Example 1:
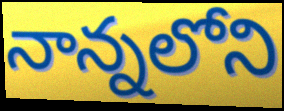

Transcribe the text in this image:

నాన్నలోని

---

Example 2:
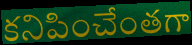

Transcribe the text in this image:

కనిపించేంతగా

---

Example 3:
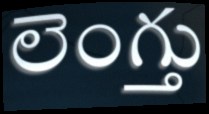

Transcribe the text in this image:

లెంగ్తు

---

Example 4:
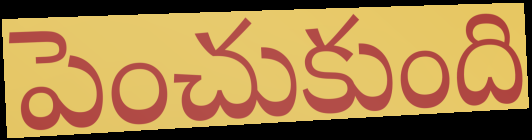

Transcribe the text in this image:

పెంచుకుంది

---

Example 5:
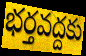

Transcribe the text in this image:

భర్తవద్దకు